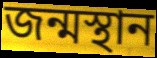
জন্মস্থান